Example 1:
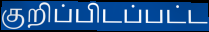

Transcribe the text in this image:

குறிப்பிடப்பட்ட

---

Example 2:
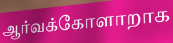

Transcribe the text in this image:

ஆர்வக்கோளாறாக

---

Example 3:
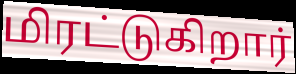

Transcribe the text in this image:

மிரட்டுகிறார்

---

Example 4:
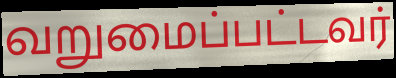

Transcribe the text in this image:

வறுமைப்பட்டவர்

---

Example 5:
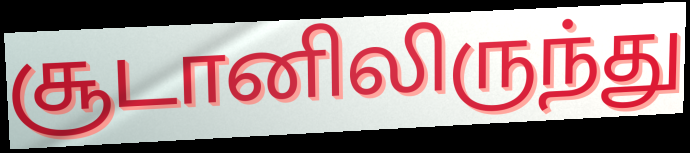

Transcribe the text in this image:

சூடானிலிருந்து